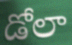
డోలా